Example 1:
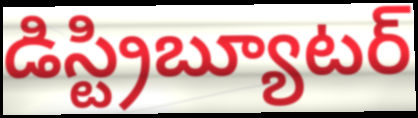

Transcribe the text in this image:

డిస్ట్రిబ్యూటర్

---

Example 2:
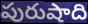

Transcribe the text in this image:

పురుషాది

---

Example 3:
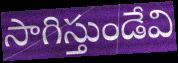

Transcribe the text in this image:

సాగిస్తుండేవి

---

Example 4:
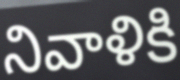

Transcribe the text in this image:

నివాళికి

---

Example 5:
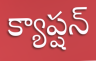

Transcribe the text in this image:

క్యాప్షన్